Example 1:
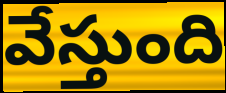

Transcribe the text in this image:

వేస్తుంది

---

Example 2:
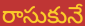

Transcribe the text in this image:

రాసుకునే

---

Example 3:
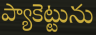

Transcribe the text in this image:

ప్యాకెట్టును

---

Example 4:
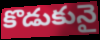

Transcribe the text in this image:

కొడుకునై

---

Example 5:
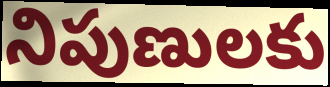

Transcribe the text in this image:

నిపుణులకు